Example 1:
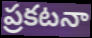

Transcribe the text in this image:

ప్రకటనా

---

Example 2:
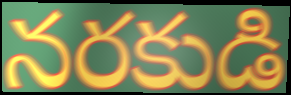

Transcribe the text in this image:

నరకుడి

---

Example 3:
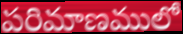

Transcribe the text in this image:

పరిమాణములో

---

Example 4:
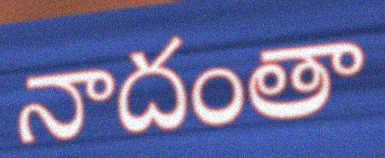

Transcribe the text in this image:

నాదంతా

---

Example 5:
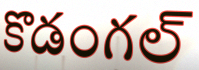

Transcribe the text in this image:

కొడంగల్